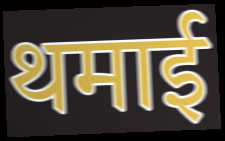
थमाई